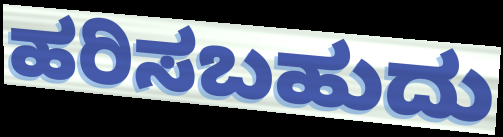
ಹರಿಸಬಹುದು